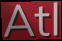
Atl